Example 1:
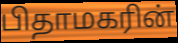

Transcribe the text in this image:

பிதாமகரின்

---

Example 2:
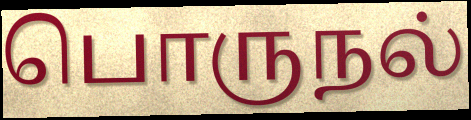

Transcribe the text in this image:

பொருநல்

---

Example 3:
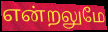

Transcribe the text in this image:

என்றலுமே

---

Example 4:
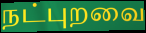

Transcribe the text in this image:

நட்புறவை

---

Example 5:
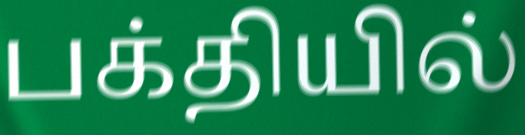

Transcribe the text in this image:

பக்தியில்